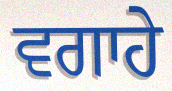
ਵਗਾਹੇ